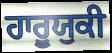
ਹਾਰੂਯੁਕੀ